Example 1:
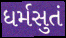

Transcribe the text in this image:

ધર્મસુતં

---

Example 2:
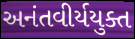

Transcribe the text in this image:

અનંતવીર્યયુક્ત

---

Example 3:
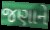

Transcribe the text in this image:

જણાને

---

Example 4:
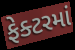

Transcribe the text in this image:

ફેક્ટરમાં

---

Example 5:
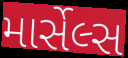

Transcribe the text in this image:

માર્સેલ્સ